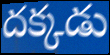
దక్కడు